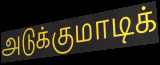
அடுக்குமாடிக்